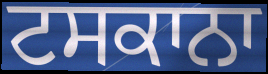
ਟਸਕਾਨਾ